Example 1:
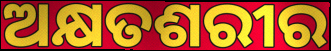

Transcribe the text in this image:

ଅକ୍ଷତଶରୀର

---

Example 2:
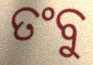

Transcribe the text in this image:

ତଂବୁ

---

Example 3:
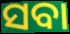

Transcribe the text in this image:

ସବା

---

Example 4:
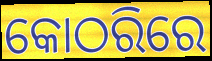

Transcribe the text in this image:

କୋଠରିରେ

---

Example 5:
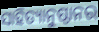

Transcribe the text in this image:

ସାହିତ୍ୟାନୁଷ୍ଠାନର